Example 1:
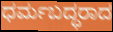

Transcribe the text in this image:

ಧರ್ಮಬದ್ಧರಾದ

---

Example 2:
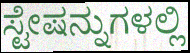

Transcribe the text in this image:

ಸ್ಟೇಷನ್ನುಗಳಲ್ಲಿ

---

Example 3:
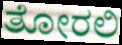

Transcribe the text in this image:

ತೋರಲಿ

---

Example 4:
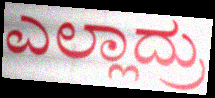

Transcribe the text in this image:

ಎಲ್ಲಾದ್ರು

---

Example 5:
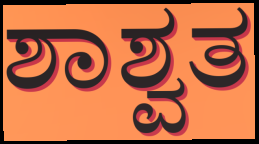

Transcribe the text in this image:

ಶಾಶ್ವತ